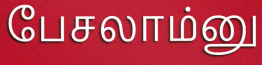
பேசலாம்னு